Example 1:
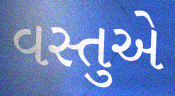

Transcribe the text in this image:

વસ્તુએ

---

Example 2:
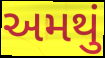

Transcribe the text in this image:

અમથું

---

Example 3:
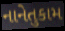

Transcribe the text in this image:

નાનેતુકામ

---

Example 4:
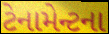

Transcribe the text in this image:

ટેનામેન્ટના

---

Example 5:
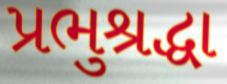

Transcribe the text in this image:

પ્રભુશ્રદ્ધા